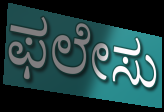
ಫಲೇಸು